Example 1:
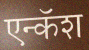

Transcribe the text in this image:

एन्कॅश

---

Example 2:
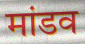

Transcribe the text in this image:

मांडव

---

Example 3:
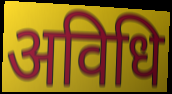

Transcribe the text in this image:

अविधि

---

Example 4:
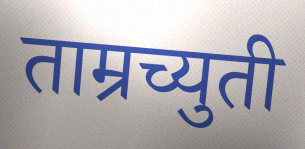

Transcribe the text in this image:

ताम्रच्युती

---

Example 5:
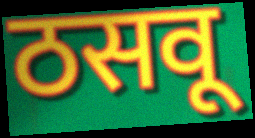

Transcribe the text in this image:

ठसवू